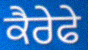
ਕੈਰੇਫੇ